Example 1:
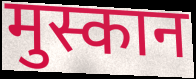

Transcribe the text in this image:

मुस्कान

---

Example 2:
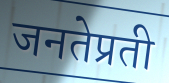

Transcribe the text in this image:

जनतेप्रती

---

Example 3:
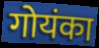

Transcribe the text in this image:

गोयंका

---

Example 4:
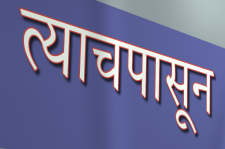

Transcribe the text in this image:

त्याचपासून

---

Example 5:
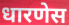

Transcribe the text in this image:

धारणेस